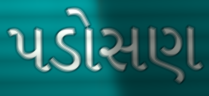
પડોસણ